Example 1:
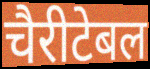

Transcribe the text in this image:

चैरीटेबल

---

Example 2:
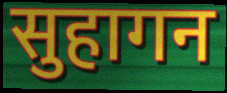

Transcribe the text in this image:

सुहागन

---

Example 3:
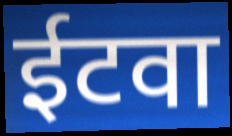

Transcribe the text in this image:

ईटवा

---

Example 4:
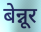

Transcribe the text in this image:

बेन्नूर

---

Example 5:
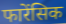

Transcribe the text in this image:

फारेंसिक